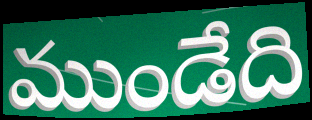
ముండేది